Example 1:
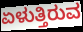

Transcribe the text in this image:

ಏಳುತ್ತಿರುವ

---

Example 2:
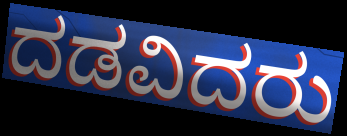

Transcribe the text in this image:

ದಡವಿದರು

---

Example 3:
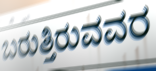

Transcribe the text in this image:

ಬರುತ್ತಿರುವವರ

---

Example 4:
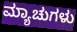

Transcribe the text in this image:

ಮ್ಯಾಚುಗಳು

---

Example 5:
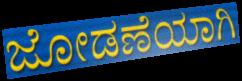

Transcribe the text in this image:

ಜೋಡಣೆಯಾಗಿ